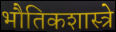
भौतिकशास्त्रे